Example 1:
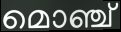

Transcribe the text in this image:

മൊഞ്ച്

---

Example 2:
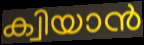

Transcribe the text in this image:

ക്വിയാൻ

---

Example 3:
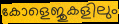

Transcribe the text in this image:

കോളെജുകളിലും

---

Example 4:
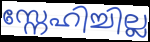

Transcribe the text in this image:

സ്നേഹിച്ചില്ല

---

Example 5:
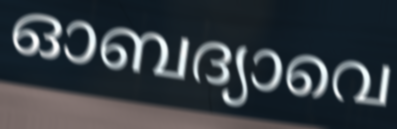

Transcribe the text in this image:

ഓബദ്യാവെ